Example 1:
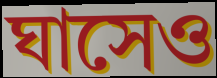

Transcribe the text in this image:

ঘাসেও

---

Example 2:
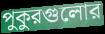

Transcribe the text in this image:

পুকুরগুলোর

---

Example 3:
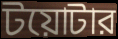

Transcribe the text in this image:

টয়োটার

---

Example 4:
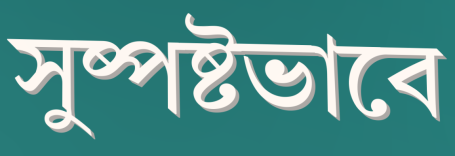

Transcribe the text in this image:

সুষ্পষ্টভাবে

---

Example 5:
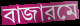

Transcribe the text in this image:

বাজারমে